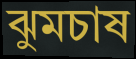
ঝুমচাষ